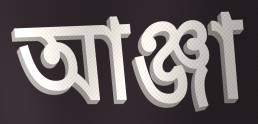
আঞ্জা